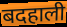
बदहाली